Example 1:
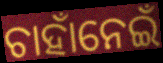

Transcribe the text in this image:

ଚାହାଁନେଇଁ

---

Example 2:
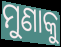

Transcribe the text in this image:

ମୁଣାକୁ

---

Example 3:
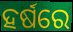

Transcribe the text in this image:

ହର୍ଷରେ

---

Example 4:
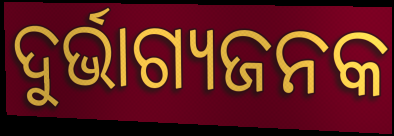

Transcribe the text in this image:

ଦୁର୍ଭାଗ୍ୟଜନକ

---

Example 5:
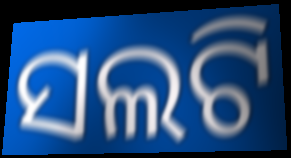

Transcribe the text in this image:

ସଲଟି